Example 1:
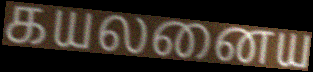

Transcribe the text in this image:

கயலனைய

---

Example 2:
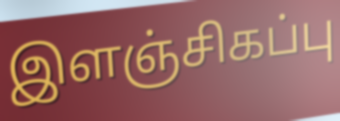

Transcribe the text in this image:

இளஞ்சிகப்பு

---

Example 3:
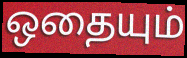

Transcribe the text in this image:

ஒதையும்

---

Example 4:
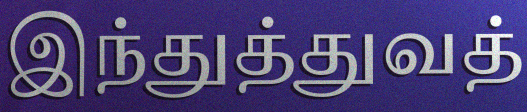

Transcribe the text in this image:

இந்துத்துவத்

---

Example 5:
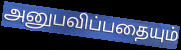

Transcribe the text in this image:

அனுபவிப்பதையும்